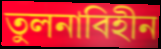
তুলনাবিহীন